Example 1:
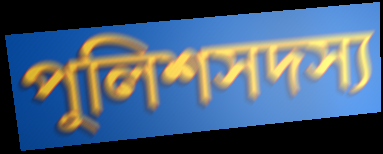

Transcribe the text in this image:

পুলিশসদস্য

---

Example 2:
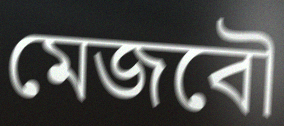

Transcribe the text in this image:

মেজবৌ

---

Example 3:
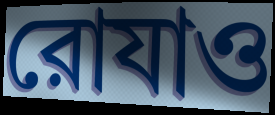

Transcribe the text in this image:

রোযাও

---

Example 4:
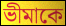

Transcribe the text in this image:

ভীমাকে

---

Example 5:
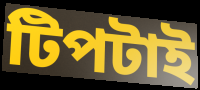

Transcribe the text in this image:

টিপটাই